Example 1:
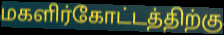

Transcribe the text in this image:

மகளிர்கோட்டத்திற்கு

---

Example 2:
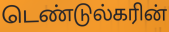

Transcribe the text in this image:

டெண்டுல்கரின்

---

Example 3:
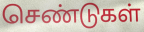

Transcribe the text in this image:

செண்டுகள்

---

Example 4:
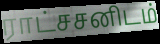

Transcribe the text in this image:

ராட்சசனிடம்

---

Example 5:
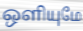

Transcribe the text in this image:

ஒளியுமே